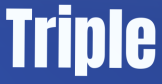
Triple